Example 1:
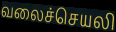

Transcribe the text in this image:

வலைச்செயலி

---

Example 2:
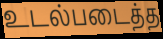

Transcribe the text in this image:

உடல்படைத்த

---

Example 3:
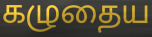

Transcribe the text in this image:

கழுதைய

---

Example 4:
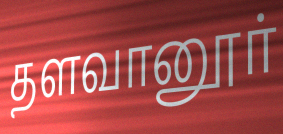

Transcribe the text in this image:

தளவானூர்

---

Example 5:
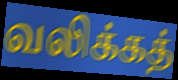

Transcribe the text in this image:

வலிக்கத்